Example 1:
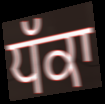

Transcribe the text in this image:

ਧੱਕਾ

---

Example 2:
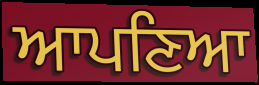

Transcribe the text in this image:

ਆਪਣਿਆ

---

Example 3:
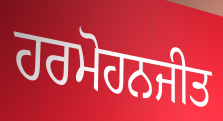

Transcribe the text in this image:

ਹਰਮੋਹਨਜੀਤ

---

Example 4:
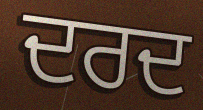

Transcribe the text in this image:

ਦਰਦ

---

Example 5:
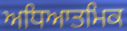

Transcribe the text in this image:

ਅਧਿਆਤਮਿਕ